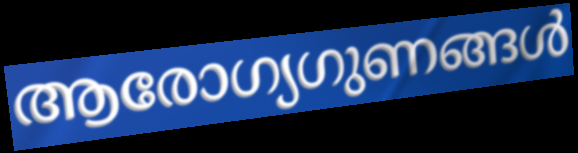
ആരോഗ്യഗുണങ്ങൾ